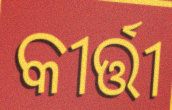
କୀର୍ତ୍ତୀ